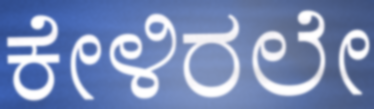
ಕೇಳಿರಲೇ